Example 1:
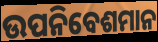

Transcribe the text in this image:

ଉପନିବେଶମାନ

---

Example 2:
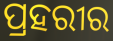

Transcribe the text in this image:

ପ୍ରହରୀର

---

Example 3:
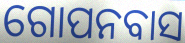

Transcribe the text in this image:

ଗୋପନବାସ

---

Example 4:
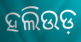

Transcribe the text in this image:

ହଲିଉଡ଼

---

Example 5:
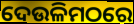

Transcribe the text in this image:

ଦେଉଳିମଠରେ